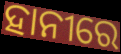
ହାନୀରେ